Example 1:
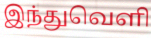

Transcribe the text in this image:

இந்துவெளி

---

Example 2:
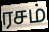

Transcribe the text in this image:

ரசம்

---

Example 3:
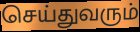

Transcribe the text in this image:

செய்துவரும்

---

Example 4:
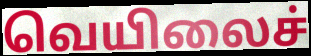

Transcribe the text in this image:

வெயிலைச்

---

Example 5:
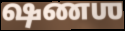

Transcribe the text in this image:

ஷணஶ